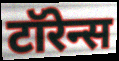
टॉरेन्स